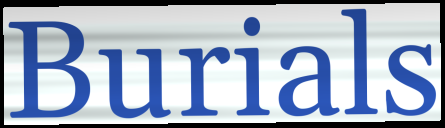
Burials